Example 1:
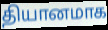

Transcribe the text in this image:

தியானமாக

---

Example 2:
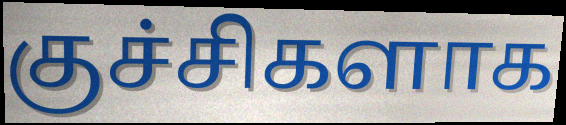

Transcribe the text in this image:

குச்சிகளாக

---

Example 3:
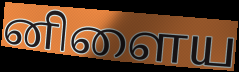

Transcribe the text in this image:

னிளைய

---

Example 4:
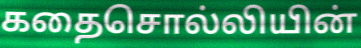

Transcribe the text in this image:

கதைசொல்லியின்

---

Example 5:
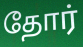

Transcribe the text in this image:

தோர்